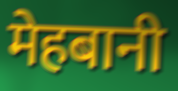
मेहबानी